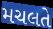
મચલતે